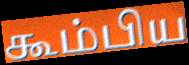
கூம்பிய